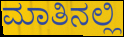
ಮಾತಿನಲ್ಲಿ